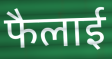
फैलाई